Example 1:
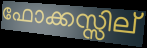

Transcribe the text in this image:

ഫോക്കസ്സില്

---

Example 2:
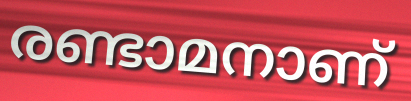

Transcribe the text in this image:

രണ്ടാമനാണ്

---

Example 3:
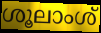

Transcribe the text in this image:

ശൂലാംശ്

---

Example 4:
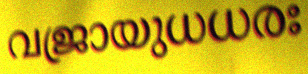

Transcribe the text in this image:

വജ്രായുധധരഃ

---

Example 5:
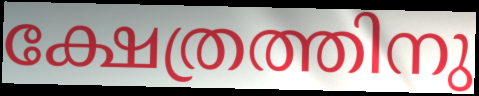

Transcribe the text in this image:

ക്ഷേത്രത്തിനു